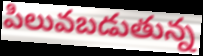
పిలువబడుతున్న